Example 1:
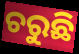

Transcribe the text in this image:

ଚରୁଛି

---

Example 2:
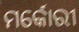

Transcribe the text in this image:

ମର୍କୋରୀ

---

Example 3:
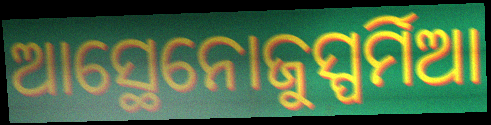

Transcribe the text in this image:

ଆସ୍ଥେନୋଜୁସ୍ପର୍ମିଆ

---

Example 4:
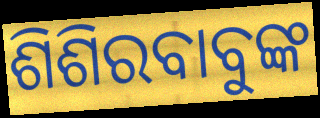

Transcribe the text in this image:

ଶିଶିରବାବୁଙ୍କ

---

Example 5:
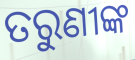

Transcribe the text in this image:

ତରୁଣୀଙ୍କ